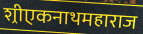
श्रीएकनाथमहाराज